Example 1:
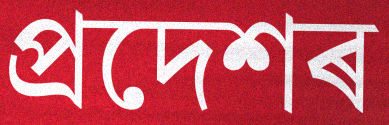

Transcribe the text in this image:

প্ৰদেশৰ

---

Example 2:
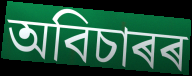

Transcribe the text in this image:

অবিচাৰৰ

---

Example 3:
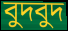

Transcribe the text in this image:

বুদবুদ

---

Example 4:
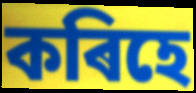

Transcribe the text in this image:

কৰিহে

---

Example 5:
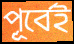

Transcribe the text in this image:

পূৰ্বেই